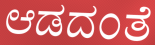
ಆಡದಂತೆ